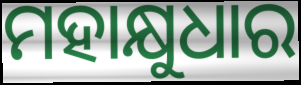
ମହାକ୍ଷୁଧାର